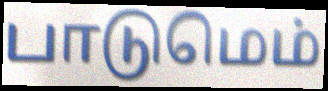
பாடுமெம்